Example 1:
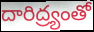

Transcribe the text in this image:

దారిద్ర్యంతో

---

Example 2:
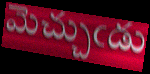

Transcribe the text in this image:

మెచ్చుఁడు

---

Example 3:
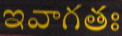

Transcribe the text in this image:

ఇవాగతః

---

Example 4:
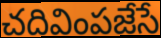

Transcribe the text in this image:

చదివింపజేసే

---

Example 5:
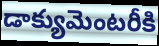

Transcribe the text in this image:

డాక్యుమెంటరీకి